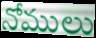
నోములు